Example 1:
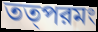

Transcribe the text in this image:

তত্পরমং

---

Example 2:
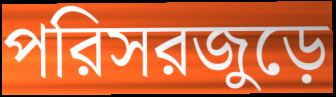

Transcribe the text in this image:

পরিসরজুড়ে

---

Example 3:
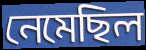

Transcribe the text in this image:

নেমেছিল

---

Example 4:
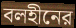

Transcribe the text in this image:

বলহীনের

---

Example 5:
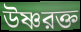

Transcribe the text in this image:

উষ্ণরক্ত